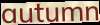
autumn